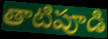
తాటిపూడి